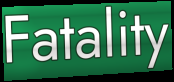
Fatality